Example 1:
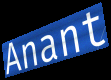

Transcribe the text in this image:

Anant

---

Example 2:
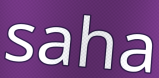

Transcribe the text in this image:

saha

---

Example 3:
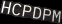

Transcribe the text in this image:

HCPDPM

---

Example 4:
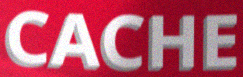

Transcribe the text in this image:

CACHE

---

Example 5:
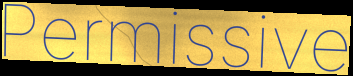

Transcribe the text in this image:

Permissive